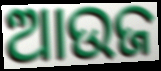
ଆଉଜ